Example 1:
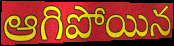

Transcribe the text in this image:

ఆగిపోయిన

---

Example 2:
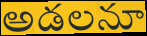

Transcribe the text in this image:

అడలనూ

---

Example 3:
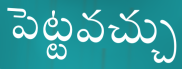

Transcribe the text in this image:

పెట్టవచ్చు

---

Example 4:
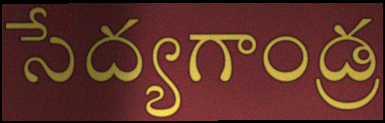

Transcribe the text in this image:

సేద్యగాండ్ర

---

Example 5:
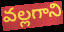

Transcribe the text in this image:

వల్లగాని